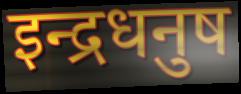
इन्द्रधनुष